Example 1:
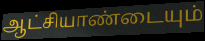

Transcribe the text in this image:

ஆட்சியாண்டையும்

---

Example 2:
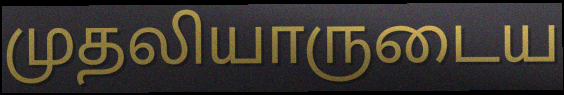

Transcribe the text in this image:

முதலியாருடைய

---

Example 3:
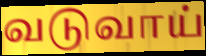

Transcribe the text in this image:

வடுவாய்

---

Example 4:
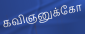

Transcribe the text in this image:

கவிஞனுக்கோ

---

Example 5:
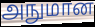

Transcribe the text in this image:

அநுமான